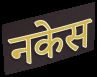
नकेस